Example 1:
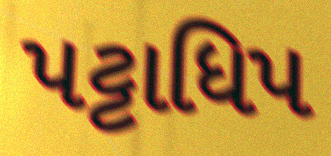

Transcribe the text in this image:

પટ્ટાધિપ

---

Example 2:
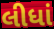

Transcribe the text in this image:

લીધાં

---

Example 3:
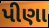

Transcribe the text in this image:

પીણા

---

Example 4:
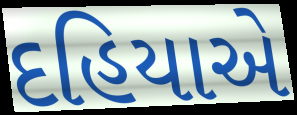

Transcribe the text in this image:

દહિયાએ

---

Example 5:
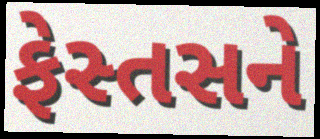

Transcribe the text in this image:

ફેસ્તસને